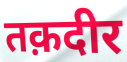
तक़दीर